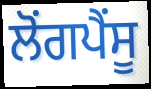
ਲੋਂਗਪੈਂਸੂ